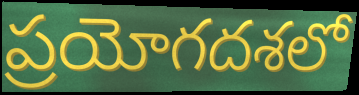
ప్రయోగదశలో